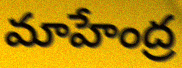
మాహేంద్ర